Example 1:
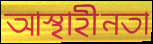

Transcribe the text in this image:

আস্থাহীনতা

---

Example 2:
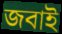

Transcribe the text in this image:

জবাই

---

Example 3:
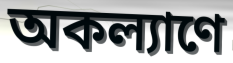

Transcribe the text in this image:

অকল্যাণে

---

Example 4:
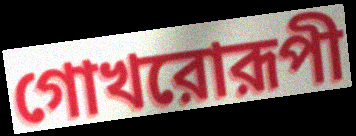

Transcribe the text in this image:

গোখরোরূপী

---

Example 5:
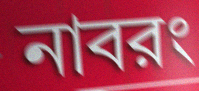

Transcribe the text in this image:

নাবরং